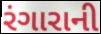
રંગારાની